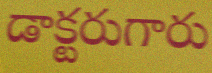
డాక్టరుగారు